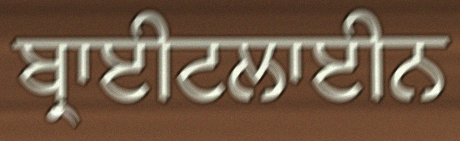
ਬ੍ਰਾਈਟਲਾਈਨ